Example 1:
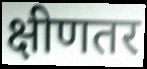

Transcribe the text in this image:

क्षीणतर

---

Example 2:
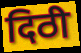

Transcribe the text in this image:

दिठी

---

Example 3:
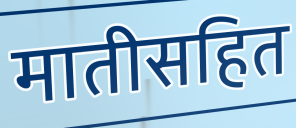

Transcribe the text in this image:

मातीसहित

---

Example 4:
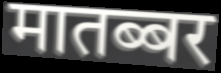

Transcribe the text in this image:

मातब्बर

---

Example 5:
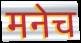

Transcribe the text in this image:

मनेच